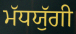
ਮੱਧਯੁੱਗੀ